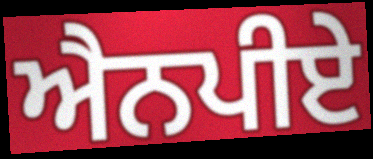
ਐਨਪੀਏ